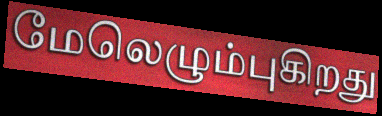
மேலெழும்புகிறது